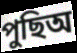
পুছিঅ